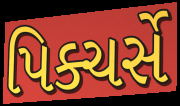
પિક્ચર્સે